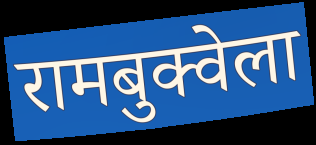
रामबुक्वेला